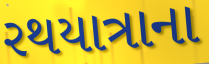
રથયાત્રાના